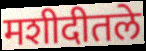
मशीदीतले